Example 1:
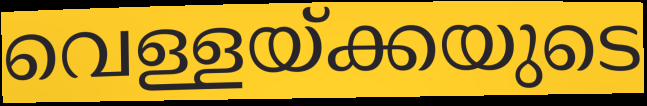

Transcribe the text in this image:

വെള്ളയ്ക്കയുടെ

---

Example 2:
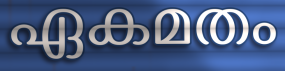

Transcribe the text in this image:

ഏകമതം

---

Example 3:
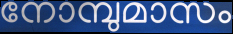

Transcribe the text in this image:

നോമ്പുമാസം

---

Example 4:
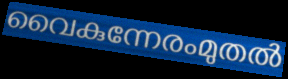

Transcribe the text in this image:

വൈകുന്നേരംമുതൽ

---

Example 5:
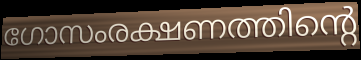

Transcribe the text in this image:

ഗോസംരക്ഷണത്തിന്റെ